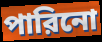
পারিনো